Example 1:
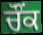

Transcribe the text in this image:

ਚੌਂਕ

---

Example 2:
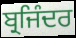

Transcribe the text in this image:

ਬ੍ਰਜਿੰਦਰ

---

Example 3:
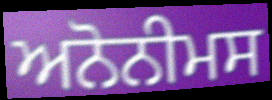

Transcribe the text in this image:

ਅਨੋਨੀਮਸ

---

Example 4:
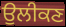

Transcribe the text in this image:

ਉਲੀਕਣ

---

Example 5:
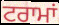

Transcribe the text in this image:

ਟਰਾਮਾਂ